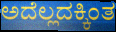
ಅದೆಲ್ಲದಕ್ಕಿಂತ